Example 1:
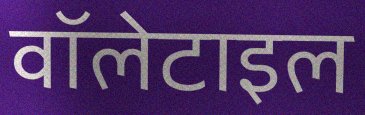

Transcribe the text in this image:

वॉलेटाइल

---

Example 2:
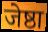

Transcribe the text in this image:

जेष्ठा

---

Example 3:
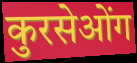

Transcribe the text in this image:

कुरसेओंग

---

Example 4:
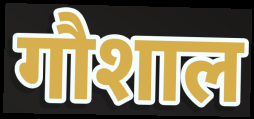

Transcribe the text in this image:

गौशाल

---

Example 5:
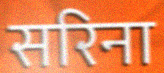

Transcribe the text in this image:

सरिना